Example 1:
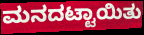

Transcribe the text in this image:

ಮನದಟ್ಟಾಯಿತು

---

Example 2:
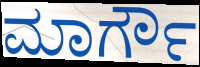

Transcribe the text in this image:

ಮಾರ್ಗೌ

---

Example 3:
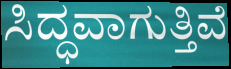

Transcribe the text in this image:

ಸಿದ್ಧವಾಗುತ್ತಿವೆ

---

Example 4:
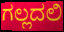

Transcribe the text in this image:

ಗಲ್ಲದಲಿ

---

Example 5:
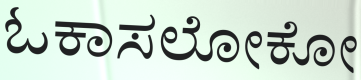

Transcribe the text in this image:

ಓಕಾಸಲೋಕೋ